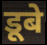
डूबे